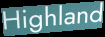
Highland